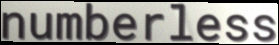
numberless